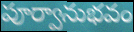
పూర్వానుభవం